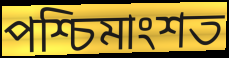
পশ্চিমাংশত